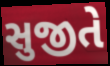
સુજીતે